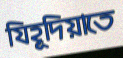
যিহূদিয়াতে